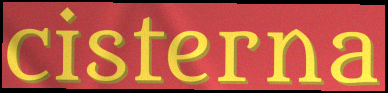
cisterna